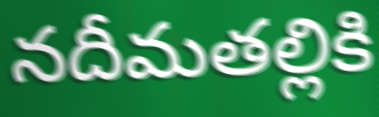
నదీమతల్లికి